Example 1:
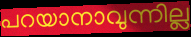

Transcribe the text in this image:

പറയാനാവുന്നില്ല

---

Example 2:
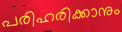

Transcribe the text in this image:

പരിഹരിക്കാനും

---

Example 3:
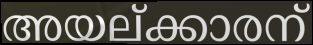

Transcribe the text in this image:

അയല്ക്കാരന്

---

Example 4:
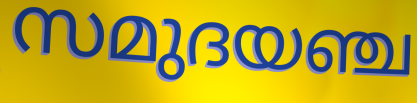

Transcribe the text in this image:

സമുദയഞ്ച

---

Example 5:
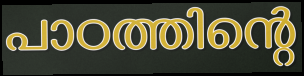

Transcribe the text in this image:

പാഠത്തിന്റെ